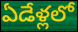
ఏడేళ్లలో